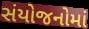
સંયોજનોમાં